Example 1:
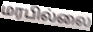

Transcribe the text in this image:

மரபில்லை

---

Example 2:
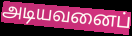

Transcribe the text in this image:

அடியவனைப்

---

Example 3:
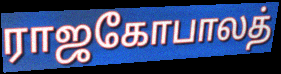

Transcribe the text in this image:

ராஜகோபாலத்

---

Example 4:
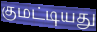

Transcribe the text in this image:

குமட்டியது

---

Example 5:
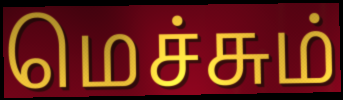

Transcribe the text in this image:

மெச்சும்